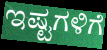
ಇಷ್ಟಗಳಿಗೆ